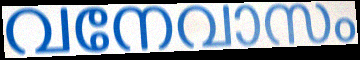
വനേവാസം